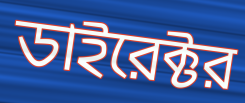
ডাইরেক্টর